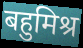
बहुमिश्र